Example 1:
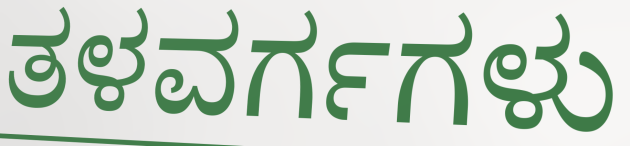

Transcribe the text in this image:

ತಳವರ್ಗಗಳು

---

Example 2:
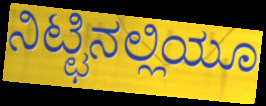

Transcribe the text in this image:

ನಿಟ್ಟಿನಲ್ಲಿಯೂ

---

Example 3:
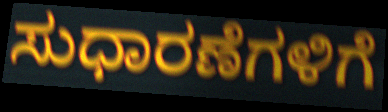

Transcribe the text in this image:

ಸುಧಾರಣೆಗಳಿಗೆ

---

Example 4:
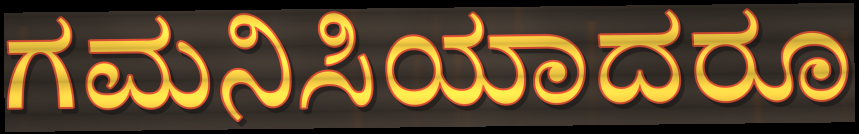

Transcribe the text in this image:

ಗಮನಿಸಿಯಾದರೂ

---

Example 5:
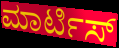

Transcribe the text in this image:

ಮಾರ್ಟಿಸ್